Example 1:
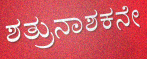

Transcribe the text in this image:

ಶತ್ರುನಾಶಕನೇ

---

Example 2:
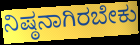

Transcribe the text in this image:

ನಿಷ್ಠನಾಗಿರಬೇಕು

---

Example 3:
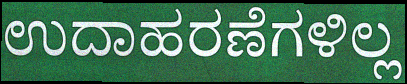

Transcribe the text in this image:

ಉದಾಹರಣೆಗಳಿಲ್ಲ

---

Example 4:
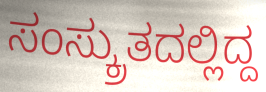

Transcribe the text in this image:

ಸಂಸ್ಕ್ರುತದಲ್ಲಿದ್ದ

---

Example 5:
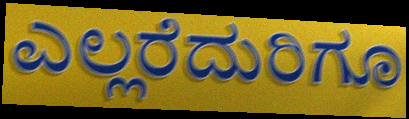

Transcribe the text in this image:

ಎಲ್ಲರೆದುರಿಗೂ